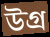
উগ্ৰ